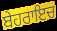
ਬੇਹਰਾਇਚ